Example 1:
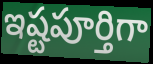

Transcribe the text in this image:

ఇష్టపూర్తిగా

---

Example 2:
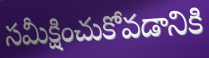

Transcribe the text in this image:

సమీక్షించుకోవడానికి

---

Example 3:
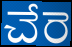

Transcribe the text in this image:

చేరె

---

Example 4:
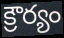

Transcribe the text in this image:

క్రౌర్యం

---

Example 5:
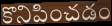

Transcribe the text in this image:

కొనిపించడం